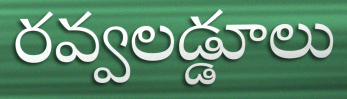
రవ్వలడ్డూలు